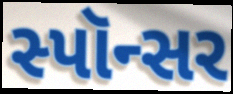
સ્પૉન્સર